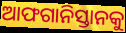
ଆଫଗାନିସ୍ତାନକୁ